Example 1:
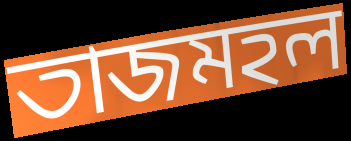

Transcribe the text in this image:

তাজমহল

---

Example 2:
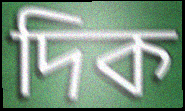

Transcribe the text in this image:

দিক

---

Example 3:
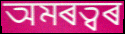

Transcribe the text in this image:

অমৰত্বৰ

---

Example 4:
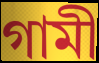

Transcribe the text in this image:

গামী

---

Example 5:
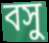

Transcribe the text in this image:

বসু